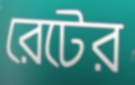
রেটের